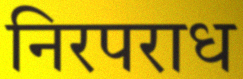
निरपराध